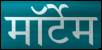
मॉर्टेम